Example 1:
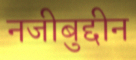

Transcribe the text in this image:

नजीबुद्दीन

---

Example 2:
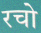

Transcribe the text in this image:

रचो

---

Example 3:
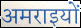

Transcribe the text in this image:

अमराइयों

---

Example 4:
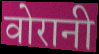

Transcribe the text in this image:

वोरानी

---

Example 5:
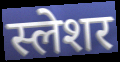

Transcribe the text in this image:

स्लेशर